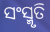
ସଂସ୍ମୃତି